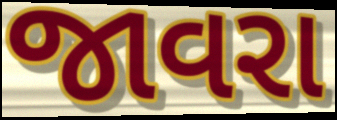
જાવરા